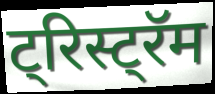
ट्रिस्ट्रॅम